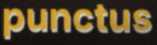
punctus